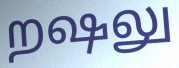
றஷலு